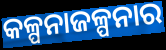
କଳ୍ପନାଜଳ୍ପନାର